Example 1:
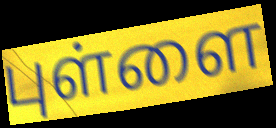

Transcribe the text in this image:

புள்ளை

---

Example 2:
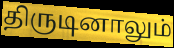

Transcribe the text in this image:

திருடினாலும்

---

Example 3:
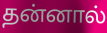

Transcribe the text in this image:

தன்னால்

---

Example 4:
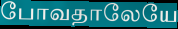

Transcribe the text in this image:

போவதாலேயே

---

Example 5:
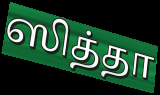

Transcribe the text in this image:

ஸித்தா